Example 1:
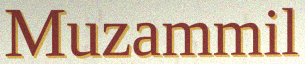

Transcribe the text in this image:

Muzammil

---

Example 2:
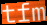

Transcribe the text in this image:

tfm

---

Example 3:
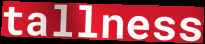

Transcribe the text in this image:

tallness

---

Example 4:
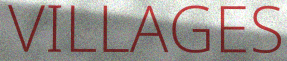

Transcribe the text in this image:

VILLAGES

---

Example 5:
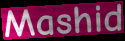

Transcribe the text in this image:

Mashid